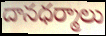
దానధర్మాలు